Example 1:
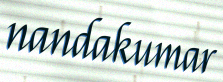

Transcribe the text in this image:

nandakumar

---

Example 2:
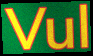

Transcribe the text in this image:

Vul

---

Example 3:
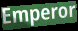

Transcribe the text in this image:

Emperor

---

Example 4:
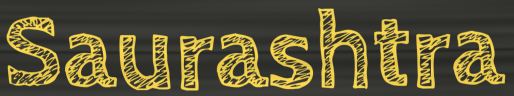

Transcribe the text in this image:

Saurashtra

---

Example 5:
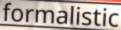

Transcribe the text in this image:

formalistic